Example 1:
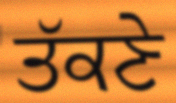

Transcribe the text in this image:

ਤੱਕਣੇ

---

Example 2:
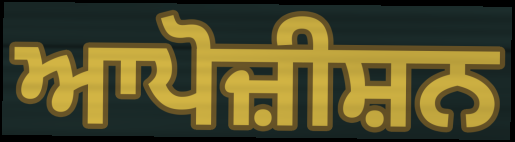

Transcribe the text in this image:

ਆਪੋਜ਼ੀਸ਼ਨ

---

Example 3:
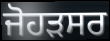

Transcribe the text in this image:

ਜੋਹੜਸਰ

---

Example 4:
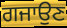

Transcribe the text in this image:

ਗਜਾਉਣ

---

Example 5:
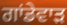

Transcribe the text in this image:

ਗਾਂਡੇਵਾੜ